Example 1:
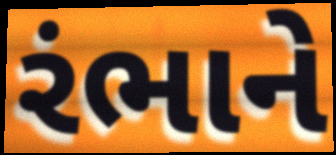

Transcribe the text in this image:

રંભાને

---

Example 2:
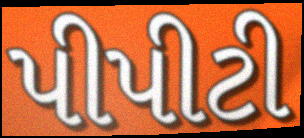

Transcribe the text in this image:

પીપીટી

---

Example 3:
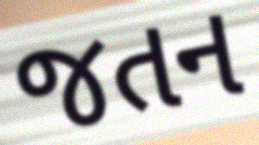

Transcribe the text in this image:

જતન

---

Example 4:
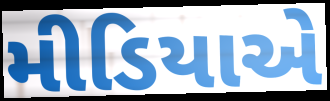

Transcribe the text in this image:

મીડિયાએ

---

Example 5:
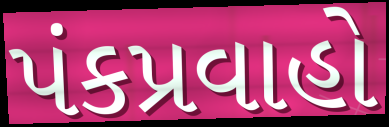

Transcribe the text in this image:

પંકપ્રવાહો